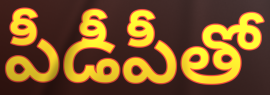
పీడీపీతో